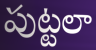
పుట్టలా